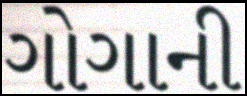
ગોગાની